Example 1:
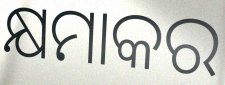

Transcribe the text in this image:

କ୍ଷମାକର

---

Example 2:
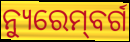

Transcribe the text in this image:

ନ୍ୟୁରେମ୍‌ବର୍ଗ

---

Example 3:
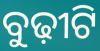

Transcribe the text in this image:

ବୁଢ଼ୀଟି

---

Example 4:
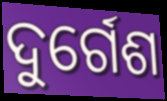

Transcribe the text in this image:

ଦୁର୍ଗେଶ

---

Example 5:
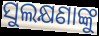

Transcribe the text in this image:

ସୁଲକ୍ଷଣାଙ୍କୁ